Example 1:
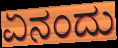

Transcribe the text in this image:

ಏನಂದು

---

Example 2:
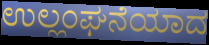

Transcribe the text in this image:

ಉಲ್ಲಂಘನೆಯಾದ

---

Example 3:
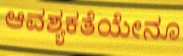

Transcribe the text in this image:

ಆವಶ್ಯಕತೆಯೇನೂ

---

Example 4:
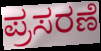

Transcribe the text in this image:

ಪ್ರಸರಣೆ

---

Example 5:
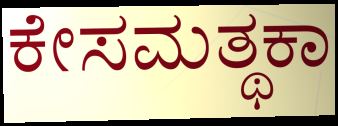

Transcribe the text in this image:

ಕೇಸಮತ್ಥಕಾ